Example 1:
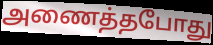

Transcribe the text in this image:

அணைத்தபோது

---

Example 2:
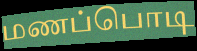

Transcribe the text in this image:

மணப்பொடி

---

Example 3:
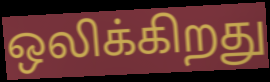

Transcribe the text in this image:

ஒலிக்கிறது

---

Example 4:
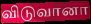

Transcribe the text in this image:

விடுவானா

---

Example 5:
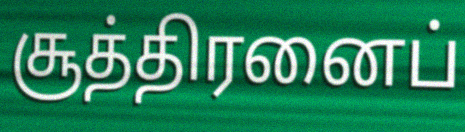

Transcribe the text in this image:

சூத்திரனைப்